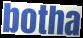
botha